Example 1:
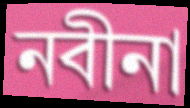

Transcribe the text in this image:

নবীনা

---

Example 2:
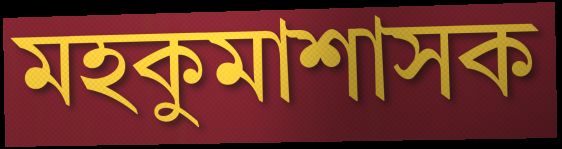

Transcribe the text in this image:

মহকুমাশাসক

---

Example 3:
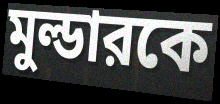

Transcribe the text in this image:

মুল্ডারকে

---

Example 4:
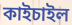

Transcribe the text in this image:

কাইচাইল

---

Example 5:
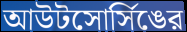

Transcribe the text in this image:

আউটসোর্সিঙের